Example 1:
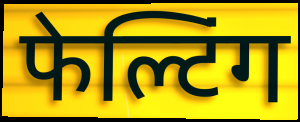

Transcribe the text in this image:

फेल्टिंग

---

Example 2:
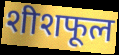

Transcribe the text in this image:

शीशफूल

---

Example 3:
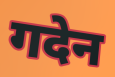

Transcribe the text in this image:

गदेन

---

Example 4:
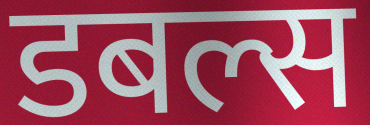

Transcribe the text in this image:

डबल्‍स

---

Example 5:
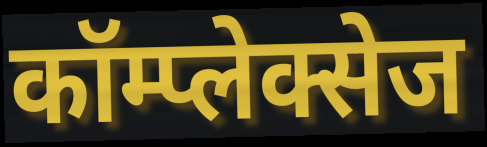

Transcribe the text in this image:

कॉम्प्लेक्सेज